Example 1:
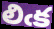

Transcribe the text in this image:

లిఁక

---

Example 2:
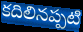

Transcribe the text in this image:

కదిలినప్పటి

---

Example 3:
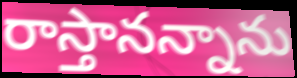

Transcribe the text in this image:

రాస్తానన్నాను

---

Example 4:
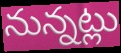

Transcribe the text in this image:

నున్నట్లు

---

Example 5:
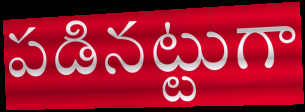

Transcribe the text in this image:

పడినట్టుగా